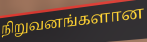
நிறுவனங்களான